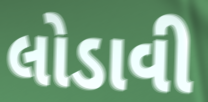
લોડાવી